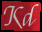
Kd